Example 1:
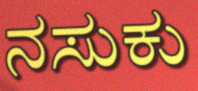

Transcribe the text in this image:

ನಸುಕು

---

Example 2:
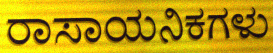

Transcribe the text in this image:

ರಾಸಾಯನಿಕಗಳು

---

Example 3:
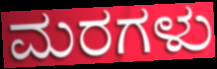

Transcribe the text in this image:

ಮರಗಳು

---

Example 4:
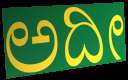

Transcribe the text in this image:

ಅದೀ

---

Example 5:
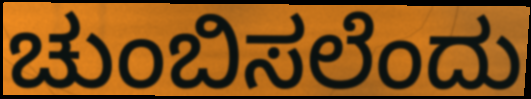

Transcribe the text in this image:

ಚುಂಬಿಸಲೆಂದು